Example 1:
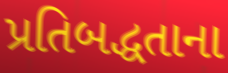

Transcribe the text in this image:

પ્રતિબદ્ધતાના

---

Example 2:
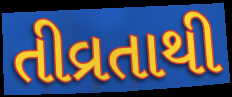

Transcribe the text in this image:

તીવ્રતાથી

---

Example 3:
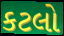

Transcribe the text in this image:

કટલો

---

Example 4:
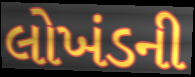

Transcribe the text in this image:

લોખંડની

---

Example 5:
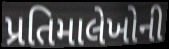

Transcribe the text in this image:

પ્રતિમાલેખોની